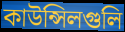
কাউন্সিলগুলি